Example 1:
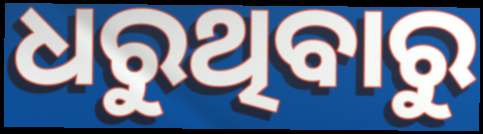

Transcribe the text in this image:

ଧରୁଥିବାରୁ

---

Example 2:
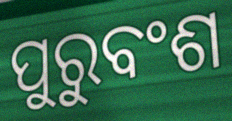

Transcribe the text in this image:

ପୁରୁବଂଶ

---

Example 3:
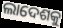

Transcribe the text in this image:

ଲାଦେଶକୁ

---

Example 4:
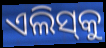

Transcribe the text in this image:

ଏଲିସ୍‌କୁ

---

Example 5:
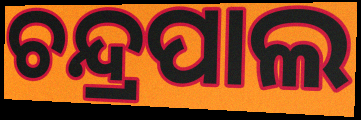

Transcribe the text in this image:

ଚନ୍ଦ୍ରପାଲ